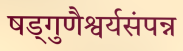
षड्‌गुणैश्वर्यसंपन्न